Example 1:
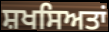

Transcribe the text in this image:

ਸ਼ਖਸਿਅਤਾਂ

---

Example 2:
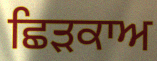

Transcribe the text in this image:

ਛਿੜਕਾਅ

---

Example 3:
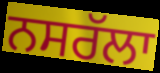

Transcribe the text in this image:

ਨਸਰੱਲਾ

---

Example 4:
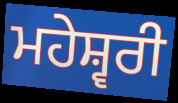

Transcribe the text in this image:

ਮਹੇਸ਼੍ਵਰੀ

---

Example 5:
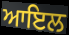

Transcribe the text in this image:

ਆਇਲ